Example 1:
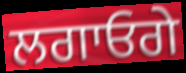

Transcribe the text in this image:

ਲਗਾਓਗੇ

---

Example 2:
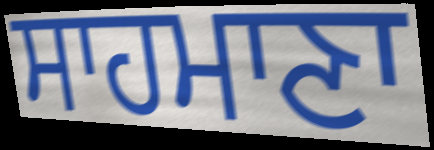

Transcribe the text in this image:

ਸਾਹਮਾਣਾ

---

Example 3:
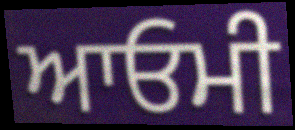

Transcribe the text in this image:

ਆਓਮੀ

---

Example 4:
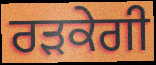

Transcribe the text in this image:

ਰੜਕੇਗੀ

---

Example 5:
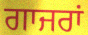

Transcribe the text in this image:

ਗਾਜਰਾਂ